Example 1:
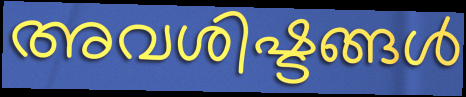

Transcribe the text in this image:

അവശിഷ്ടങ്ങൾ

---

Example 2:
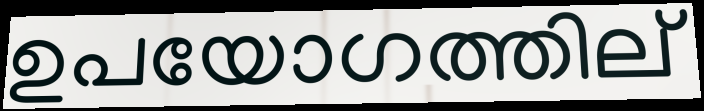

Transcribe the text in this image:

ഉപയോഗത്തില്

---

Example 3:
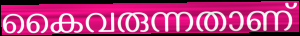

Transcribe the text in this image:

കൈവരുന്നതാണ്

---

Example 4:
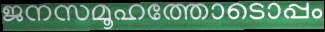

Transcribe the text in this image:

ജനസമൂഹത്തോടൊപ്പം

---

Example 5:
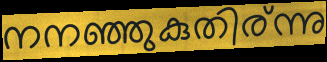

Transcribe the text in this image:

നനഞ്ഞുകുതിര്ന്നു